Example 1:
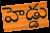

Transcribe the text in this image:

హెడ్డు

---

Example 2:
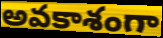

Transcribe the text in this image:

అవకాశంగా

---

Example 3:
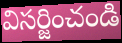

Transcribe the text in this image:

విసర్జించండి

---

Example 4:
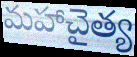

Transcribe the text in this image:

మహాచైత్య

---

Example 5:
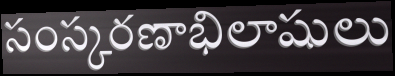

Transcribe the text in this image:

సంస్కరణాభిలాషులు